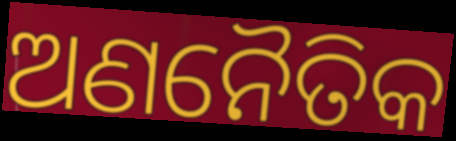
ଅଣନୈତିକ